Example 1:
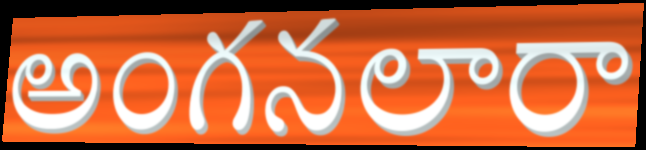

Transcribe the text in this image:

అంగనలారా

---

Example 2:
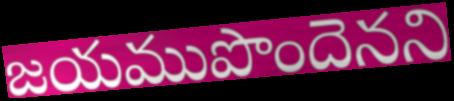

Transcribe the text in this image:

జయముపొందెనని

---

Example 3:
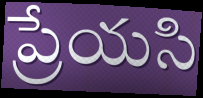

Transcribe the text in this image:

ప్రేయసి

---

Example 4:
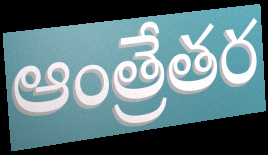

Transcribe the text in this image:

ఆంత్రేతర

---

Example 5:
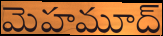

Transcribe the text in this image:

మెహమూద్